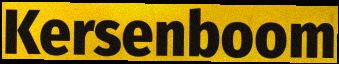
Kersenboom